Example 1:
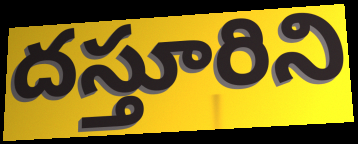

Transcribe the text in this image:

దస్తూరిని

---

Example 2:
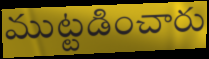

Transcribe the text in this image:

ముట్టడించారు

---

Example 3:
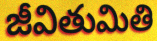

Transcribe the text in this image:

జీవితుమితి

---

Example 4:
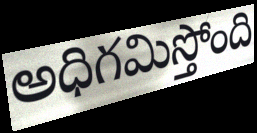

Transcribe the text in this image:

అధిగమిస్తోంది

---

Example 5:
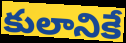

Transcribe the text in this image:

కులానికే